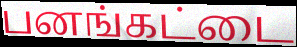
பனங்கட்டை